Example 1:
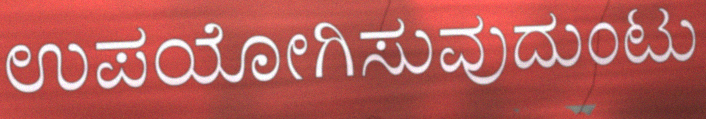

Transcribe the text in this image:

ಉಪಯೋಗಿಸುವುದುಂಟು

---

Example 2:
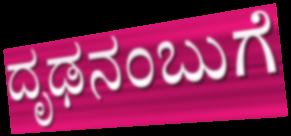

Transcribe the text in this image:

ದೃಢನಂಬುಗೆ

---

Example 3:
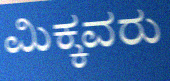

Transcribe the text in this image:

ಮಿಕ್ಕವರು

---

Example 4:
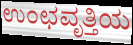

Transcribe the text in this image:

ಉಂಛವೃತ್ತಿಯ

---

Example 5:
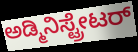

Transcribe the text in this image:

ಅಡ್ಮಿನಿಸ್ಟ್ರೇಟರ್